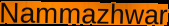
Nammazhwar